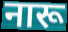
नारू